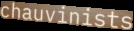
chauvinists